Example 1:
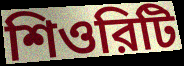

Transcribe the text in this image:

শিওরিটি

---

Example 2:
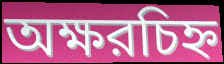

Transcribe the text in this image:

অক্ষরচিহ্ন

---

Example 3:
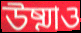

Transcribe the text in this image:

উষ্মাও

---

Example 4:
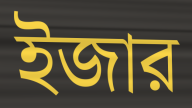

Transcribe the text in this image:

ইজার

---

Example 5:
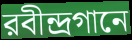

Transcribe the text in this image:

রবীন্দ্রগানে